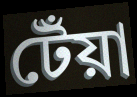
টেঁয়া